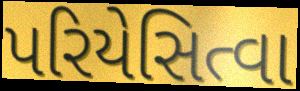
પરિયેસિત્વા